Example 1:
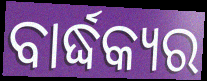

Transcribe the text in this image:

ବାର୍ଦ୍ଧକ୍ୟର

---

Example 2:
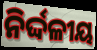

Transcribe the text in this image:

ନିର୍ଦ୍ଦଳୀୟ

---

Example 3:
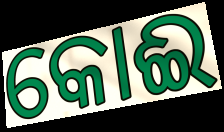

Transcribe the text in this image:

କୋଈ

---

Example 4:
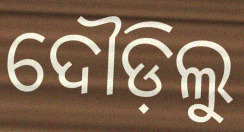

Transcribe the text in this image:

ଦୌଡ଼ିଲୁ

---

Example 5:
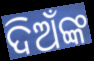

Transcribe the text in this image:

ଦିଅଁଙ୍କ